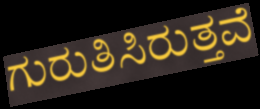
ಗುರುತಿಸಿರುತ್ತವೆ